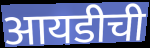
आयडीची